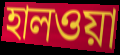
হালওয়া